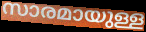
സാരമായുള്ള